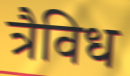
त्रैविध